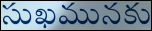
సుఖమునకు